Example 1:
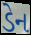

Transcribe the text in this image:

ડેન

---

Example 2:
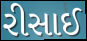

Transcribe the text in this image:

રીસાઈ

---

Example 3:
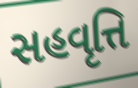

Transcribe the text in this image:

સહવૃત્તિ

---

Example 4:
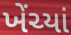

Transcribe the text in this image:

ખેંચ્યાં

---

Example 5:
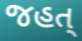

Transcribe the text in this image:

જહત્